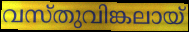
വസ്തുവിങ്കലായ്